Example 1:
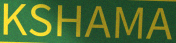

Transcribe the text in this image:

KSHAMA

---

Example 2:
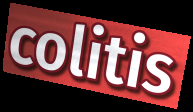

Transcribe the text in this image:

colitis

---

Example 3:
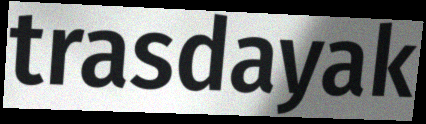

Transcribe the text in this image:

trasdayak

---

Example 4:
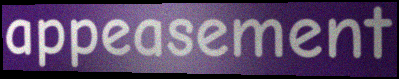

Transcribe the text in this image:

appeasement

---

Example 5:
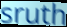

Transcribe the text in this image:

sruth